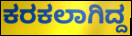
ಕರಕಲಾಗಿದ್ದ